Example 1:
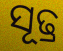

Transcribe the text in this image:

ସୂଢ୍ର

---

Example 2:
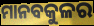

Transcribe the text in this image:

ମାନବକୁଳର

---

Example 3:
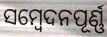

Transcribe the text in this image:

ସମ୍ବେଦନପୂର୍ଣ୍ଣ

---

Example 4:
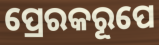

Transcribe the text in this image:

ପ୍ରେରକରୂପେ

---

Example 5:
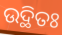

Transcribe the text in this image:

ଉଦ୍ଥିତଃ